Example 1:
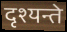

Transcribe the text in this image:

दृश्यन्ते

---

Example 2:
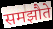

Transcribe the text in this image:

समझौते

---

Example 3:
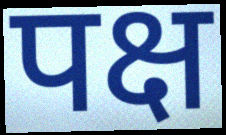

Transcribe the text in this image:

पक्ष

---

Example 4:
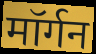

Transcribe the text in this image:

मॉर्गन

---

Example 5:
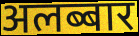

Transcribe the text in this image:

अलब्बार